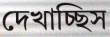
দেখাচ্ছিস